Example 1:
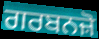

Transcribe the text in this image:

ਗਰਬਨਜ਼ੋ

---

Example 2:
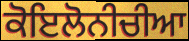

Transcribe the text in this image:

ਕੋਇਲੋਨੀਚੀਆ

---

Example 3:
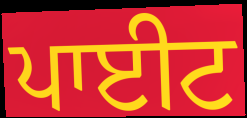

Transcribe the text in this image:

ਪਾਈਟ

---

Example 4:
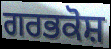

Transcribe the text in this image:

ਗਰਭਕੋਸ਼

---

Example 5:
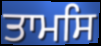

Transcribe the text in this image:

ਤਾਮਸਿ